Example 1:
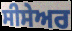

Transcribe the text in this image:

ਸੀਸੇਅਰ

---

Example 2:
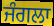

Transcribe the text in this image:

ਜੰਗਲਾ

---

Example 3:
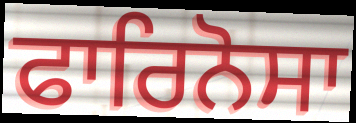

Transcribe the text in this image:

ਫਾਰਿਨੋਸਾ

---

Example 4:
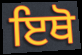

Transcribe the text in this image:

ਇਥੋ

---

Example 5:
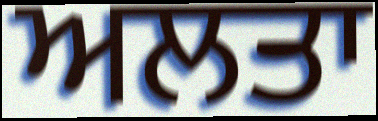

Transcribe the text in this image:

ਅਲਤਾ